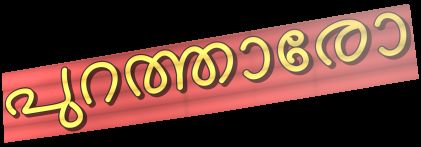
പുറത്താരോ